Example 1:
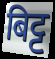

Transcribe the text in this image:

बिट्ट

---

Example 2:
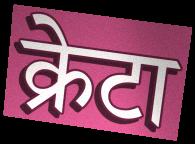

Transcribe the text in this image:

क्रेटा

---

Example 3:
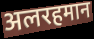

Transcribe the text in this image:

अलरहमान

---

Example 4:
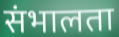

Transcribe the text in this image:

संभालता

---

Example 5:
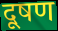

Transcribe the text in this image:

दूषण